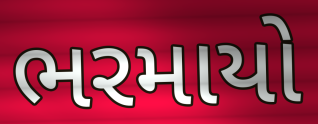
ભરમાયો